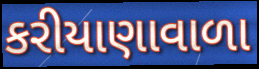
કરીયાણાવાળા